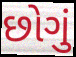
છોગું